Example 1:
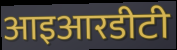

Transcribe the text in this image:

आइआरडीटी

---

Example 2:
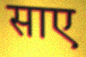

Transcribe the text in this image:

साए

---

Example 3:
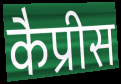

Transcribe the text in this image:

कैप्रीस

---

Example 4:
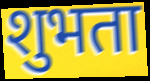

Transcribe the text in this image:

शुभता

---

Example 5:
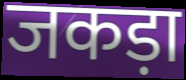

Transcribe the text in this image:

जकड़ा